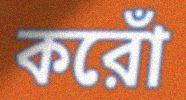
করোঁ